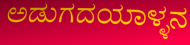
ಅಡುಗದಯಾಳ್ಳನ